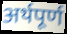
अर्थपूर्ण